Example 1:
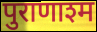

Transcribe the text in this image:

पुराणाश्म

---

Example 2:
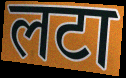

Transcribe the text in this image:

लटा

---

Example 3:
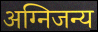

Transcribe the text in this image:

अग्निजन्य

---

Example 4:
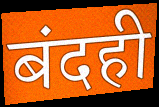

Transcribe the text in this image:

बंदही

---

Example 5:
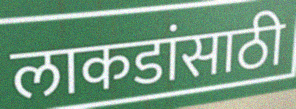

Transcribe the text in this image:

लाकडांसाठी